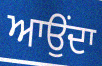
ਆਉਂਦਾ